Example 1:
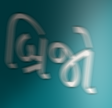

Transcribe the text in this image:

બ્રિજો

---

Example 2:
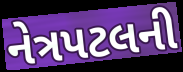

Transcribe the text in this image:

નેત્રપટલની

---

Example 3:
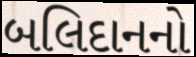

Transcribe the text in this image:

બલિદાનનો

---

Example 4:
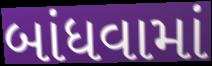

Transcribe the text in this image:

બાંધવામાં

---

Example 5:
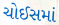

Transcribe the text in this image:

ચોઈસમાં